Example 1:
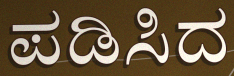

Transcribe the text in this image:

ಪಡಿಸಿದ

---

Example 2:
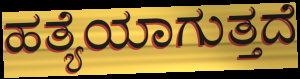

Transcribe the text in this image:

ಹತ್ಯೆಯಾಗುತ್ತದೆ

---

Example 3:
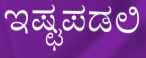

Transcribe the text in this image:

ಇಷ್ಟಪಡಲಿ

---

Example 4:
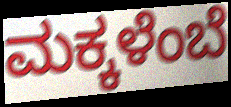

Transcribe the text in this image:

ಮಕ್ಕಳೆಂಬೆ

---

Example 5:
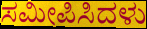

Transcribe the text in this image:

ಸಮೀಪಿಸಿದಳು